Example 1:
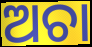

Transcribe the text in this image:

ଅଚା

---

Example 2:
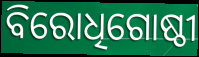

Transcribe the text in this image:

ବିରୋଧିଗୋଷ୍ଠୀ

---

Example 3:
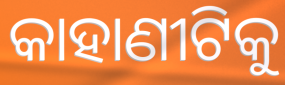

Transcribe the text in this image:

କାହାଣୀଟିକୁ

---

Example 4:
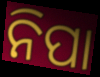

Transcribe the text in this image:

ନିପା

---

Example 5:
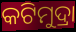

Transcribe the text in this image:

କଟିମୁଦ୍ରା